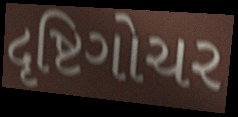
દૃષ્ટિગોચર